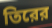
তিরের